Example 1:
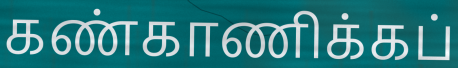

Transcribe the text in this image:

கண்காணிக்கப்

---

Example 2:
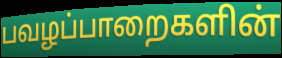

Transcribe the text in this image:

பவழப்பாறைகளின்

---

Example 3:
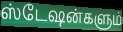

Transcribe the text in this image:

ஸ்டேஷன்களும்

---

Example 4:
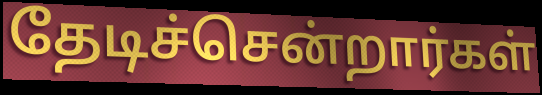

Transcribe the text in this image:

தேடிச்சென்றார்கள்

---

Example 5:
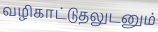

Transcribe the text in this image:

வழிகாட்டுதலுடனும்